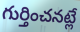
గుర్తించనట్లే